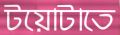
টয়োটাতে